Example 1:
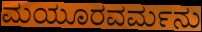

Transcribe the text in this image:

ಮಯೂರವರ್ಮನು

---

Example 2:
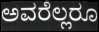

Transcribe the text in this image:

ಅವರೆಲ್ಲರೂ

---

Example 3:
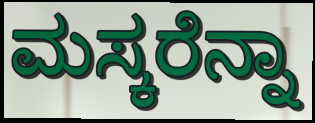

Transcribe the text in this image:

ಮಸ್ಕರೆನ್ನಾ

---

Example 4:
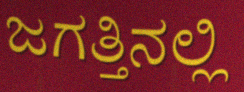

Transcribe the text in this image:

ಜಗತ್ತಿನಲ್ಲಿ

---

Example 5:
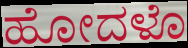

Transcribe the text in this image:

ಹೋದಳೊ